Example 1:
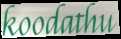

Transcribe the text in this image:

koodathu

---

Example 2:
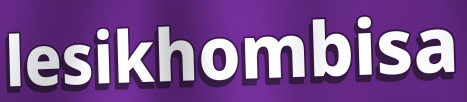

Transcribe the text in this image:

lesikhombisa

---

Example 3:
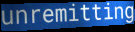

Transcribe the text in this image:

unremitting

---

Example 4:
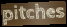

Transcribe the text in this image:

pitches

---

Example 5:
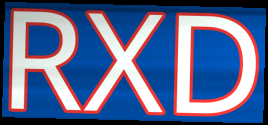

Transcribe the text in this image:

RXD